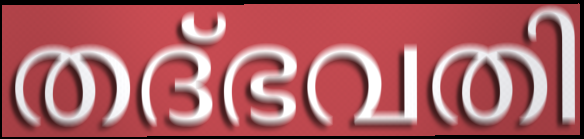
തദ്ഭവതി